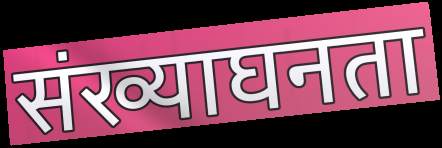
संख्याघनता